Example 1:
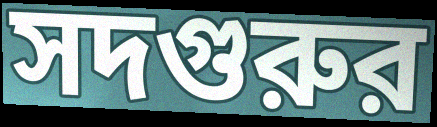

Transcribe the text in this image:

সদগুরুর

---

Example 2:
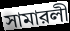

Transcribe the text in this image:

সামারলী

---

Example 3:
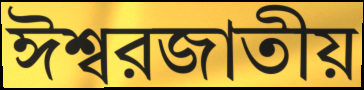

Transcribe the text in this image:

ঈশ্বরজাতীয়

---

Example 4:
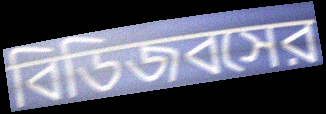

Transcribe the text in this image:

বিডিজবসের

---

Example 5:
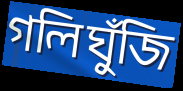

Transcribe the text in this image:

গলিঘুঁজি